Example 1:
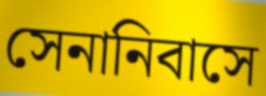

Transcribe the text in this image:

সেনানিবাসে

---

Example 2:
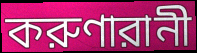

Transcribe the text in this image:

করুণারানী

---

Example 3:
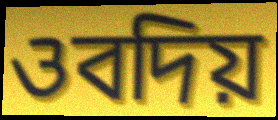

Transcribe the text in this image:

ওবদিয়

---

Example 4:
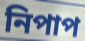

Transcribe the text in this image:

নিপাপ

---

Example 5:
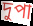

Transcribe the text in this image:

দুপা